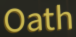
Oath